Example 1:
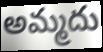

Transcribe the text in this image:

అమ్మదు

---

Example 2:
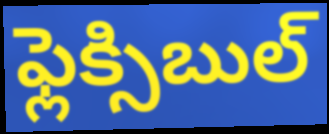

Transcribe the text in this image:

ఫ్లెక్సిబుల్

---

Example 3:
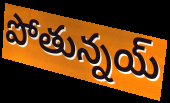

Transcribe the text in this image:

పోతున్నయ్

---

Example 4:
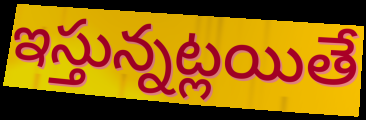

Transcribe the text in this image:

ఇస్తున్నట్లయితే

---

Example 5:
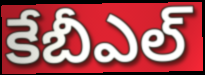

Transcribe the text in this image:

కేబీఎల్